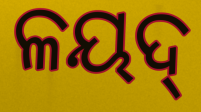
ଳୟଦ୍